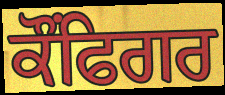
ਕੌਂਫਿਗਰ